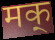
मक्